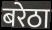
बरेठा